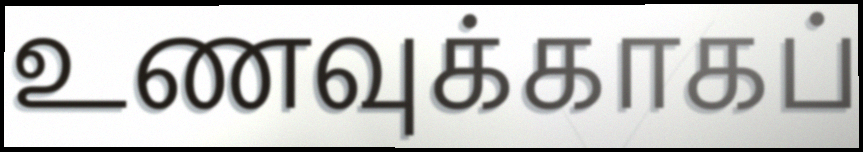
உணவுக்காகப்